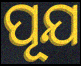
ପୂଯ